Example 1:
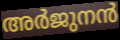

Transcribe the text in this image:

അർജുനൻ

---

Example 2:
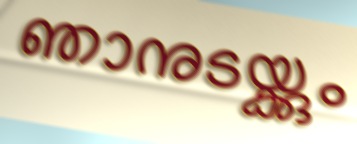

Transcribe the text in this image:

ഞാനുടയ്ക്കും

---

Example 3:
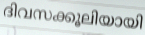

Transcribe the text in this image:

ദിവസക്കൂലിയായി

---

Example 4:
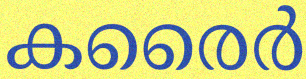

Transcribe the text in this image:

കരൈർ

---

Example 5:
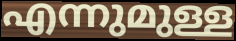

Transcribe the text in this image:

എന്നുമുള്ള